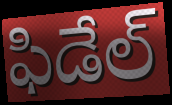
ఫిడేల్